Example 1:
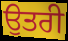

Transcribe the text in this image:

ਉਤਰੀ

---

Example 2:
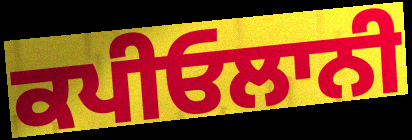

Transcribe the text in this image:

ਕਪੀਓਲਾਨੀ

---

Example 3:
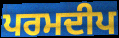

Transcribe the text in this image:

ਪਰਮਦੀਪ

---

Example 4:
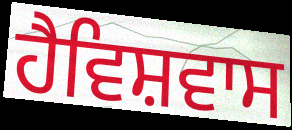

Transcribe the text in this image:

ਹੈਵਿਸ਼ਵਾਸ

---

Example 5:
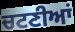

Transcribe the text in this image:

ਚਟਣੀਆਂ